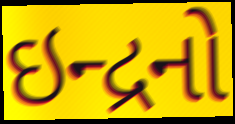
ઇન્દ્રનો